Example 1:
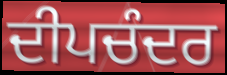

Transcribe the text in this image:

ਦੀਪਚੰਦਰ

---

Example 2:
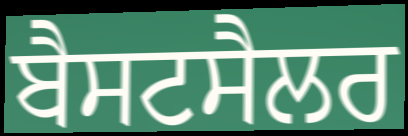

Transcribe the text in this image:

ਬੈਸਟਸੈਲਰ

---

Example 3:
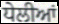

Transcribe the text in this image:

ਧੇਲੀਆਂ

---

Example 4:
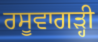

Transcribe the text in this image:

ਰਸੂਵਾਗੜ੍ਹੀ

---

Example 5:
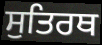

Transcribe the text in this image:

ਸੁਤਿਰਥ